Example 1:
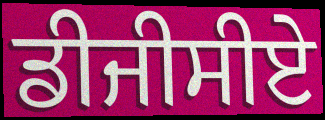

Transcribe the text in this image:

ਡੀਜੀਸੀਏ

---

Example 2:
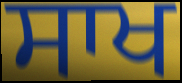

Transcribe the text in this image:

ਸਾਖ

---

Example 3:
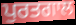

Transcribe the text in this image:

ਪੁਰਤਗਾਲ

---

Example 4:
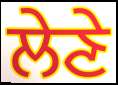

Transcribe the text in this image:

ਲੇਣੇ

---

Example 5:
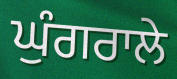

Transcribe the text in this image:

ਘੁੰਗਰਾਲੇ